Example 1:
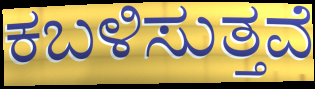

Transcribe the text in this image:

ಕಬಳಿಸುತ್ತವೆ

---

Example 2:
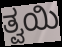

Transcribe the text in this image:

ತ್ವಯಿ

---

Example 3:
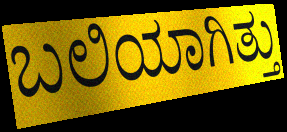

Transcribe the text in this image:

ಬಲಿಯಾಗಿತ್ತು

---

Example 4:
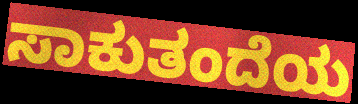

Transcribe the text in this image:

ಸಾಕುತಂದೆಯ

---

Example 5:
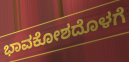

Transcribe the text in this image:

ಭಾವಕೋಶದೊಳಗೆ